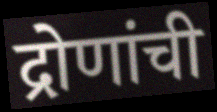
द्रोणांची